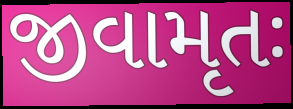
જીવામૃતઃ